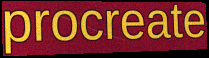
procreate